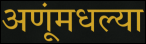
अणूंमधल्या